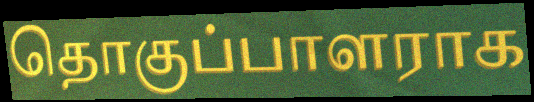
தொகுப்பாளராக